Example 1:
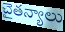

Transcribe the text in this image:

చైతన్యాలు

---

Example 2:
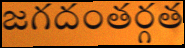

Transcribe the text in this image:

జగదంతర్గత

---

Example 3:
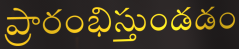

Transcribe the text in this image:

ప్రారంభిస్తుండడం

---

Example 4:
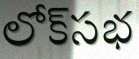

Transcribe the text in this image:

లోక్‌సభ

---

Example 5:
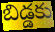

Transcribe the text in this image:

బిడ్డకు